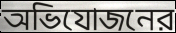
অভিযোজনের